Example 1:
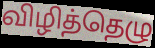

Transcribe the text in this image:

விழித்தெழு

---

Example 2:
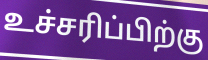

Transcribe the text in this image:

உச்சரிப்பிற்கு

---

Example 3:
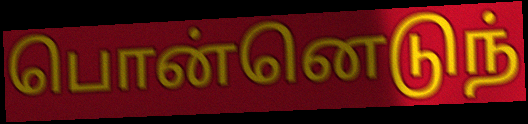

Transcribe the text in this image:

பொன்னெடுந்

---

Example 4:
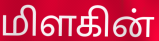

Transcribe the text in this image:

மிளகின்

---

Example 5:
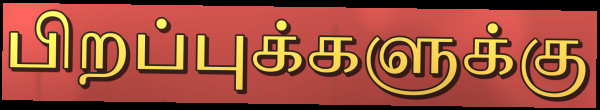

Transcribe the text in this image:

பிறப்புக்களுக்கு